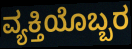
ವ್ಯಕ್ತಿಯೊಬ್ಬರ